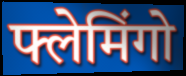
फ्लेमिंगो